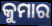
କୁମାର